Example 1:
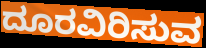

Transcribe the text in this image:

ದೂರವಿರಿಸುವ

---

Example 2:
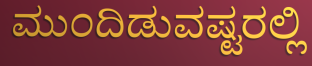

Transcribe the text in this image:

ಮುಂದಿಡುವಷ್ಟರಲ್ಲಿ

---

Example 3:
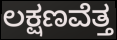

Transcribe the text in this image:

ಲಕ್ಷಣವೆತ್ತ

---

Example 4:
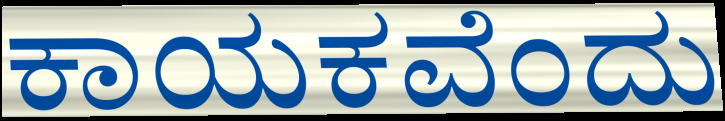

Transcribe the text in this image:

ಕಾಯಕವೆಂದು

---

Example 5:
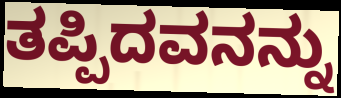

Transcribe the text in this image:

ತಪ್ಪಿದವನನ್ನು